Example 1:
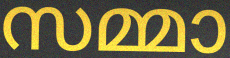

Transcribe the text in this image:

സമ്മാ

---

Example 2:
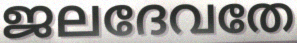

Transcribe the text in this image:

ജലദേവതേ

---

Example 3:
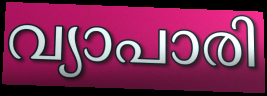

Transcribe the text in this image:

വ്യാപാരി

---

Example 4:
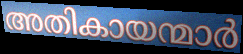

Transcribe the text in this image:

അതികായന്മാർ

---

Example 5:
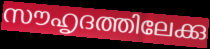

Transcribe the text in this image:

സൗഹൃദത്തിലേക്കു